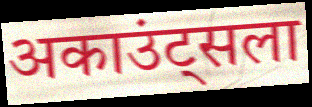
अकाउंट्सला